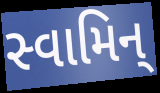
સ્વામિન્